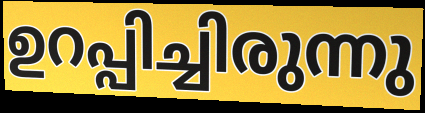
ഉറപ്പിച്ചിരുന്നു